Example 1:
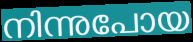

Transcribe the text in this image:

നിന്നുപോയ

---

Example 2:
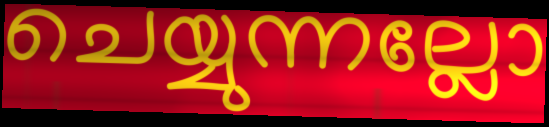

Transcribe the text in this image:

ചെയ്യുന്നല്ലോ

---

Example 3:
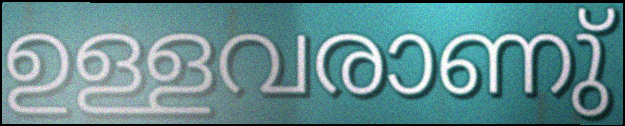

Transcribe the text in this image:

ഉള്ളവരാണു്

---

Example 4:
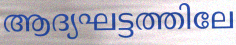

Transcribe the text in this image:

ആദ്യഘട്ടത്തിലേ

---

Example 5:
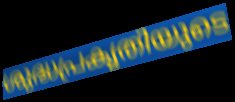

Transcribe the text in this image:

ശുദ്ധപ്രകൃതിയുടെ